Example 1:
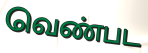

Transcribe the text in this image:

வெண்பட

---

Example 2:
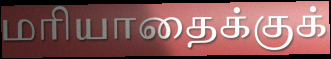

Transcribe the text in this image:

மரியாதைக்குக்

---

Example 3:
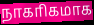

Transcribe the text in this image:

நாகரிகமாக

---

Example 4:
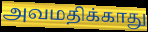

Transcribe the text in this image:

அவமதிக்காது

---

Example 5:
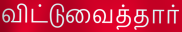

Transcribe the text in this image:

விட்டுவைத்தார்